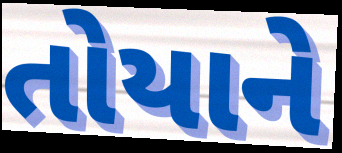
તોયાને